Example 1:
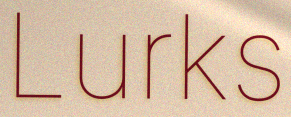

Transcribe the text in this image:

Lurks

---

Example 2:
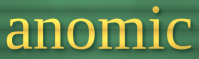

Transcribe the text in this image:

anomic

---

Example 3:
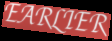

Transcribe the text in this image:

EARLIER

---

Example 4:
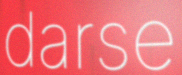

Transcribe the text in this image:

darse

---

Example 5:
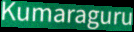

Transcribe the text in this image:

Kumaraguru